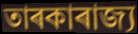
তাৰকাৰাজ্য